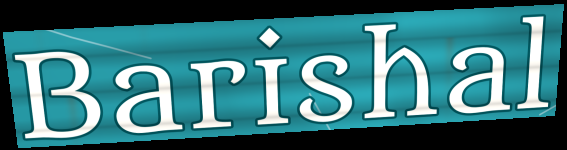
Barishal